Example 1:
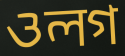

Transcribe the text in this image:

ওলগ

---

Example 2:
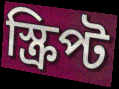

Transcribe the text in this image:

স্ক্ৰিপ্ট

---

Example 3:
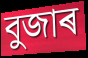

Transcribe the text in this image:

বুজাৰ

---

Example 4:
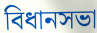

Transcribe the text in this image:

বিধানসভা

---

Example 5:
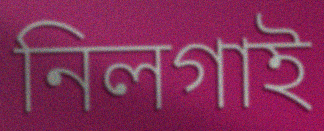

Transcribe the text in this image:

নিলগাই